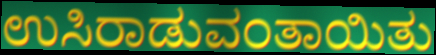
ಉಸಿರಾಡುವಂತಾಯಿತು